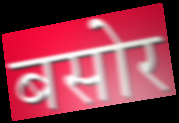
बसोर